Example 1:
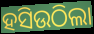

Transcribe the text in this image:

ହସିଉଠିଲା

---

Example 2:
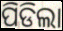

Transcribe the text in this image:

ପିଡିଲା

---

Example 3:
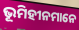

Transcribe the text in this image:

ଭୂମିହୀନମାନେ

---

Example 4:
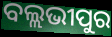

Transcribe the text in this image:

ବଲ୍ଲଭୀପୁର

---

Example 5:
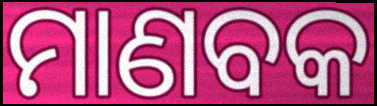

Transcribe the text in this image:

ମାଣବକ